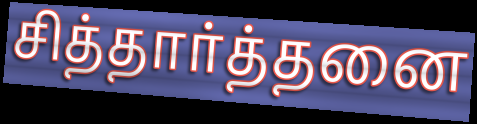
சித்தார்த்தனை